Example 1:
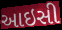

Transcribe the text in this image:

આઇસી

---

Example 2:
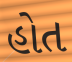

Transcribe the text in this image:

હોત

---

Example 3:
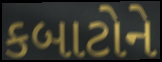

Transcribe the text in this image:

કબાટોને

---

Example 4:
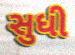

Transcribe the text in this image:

સુધી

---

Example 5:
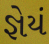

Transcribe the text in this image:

જ્ઞેયં